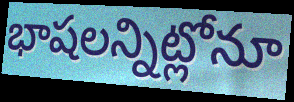
భాషలన్నిట్లోనూ